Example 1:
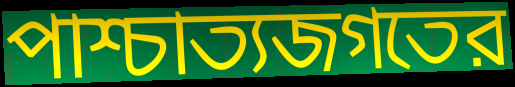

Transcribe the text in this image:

পাশ্চাত্যজগতের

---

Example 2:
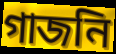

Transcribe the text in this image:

গাজনি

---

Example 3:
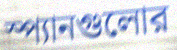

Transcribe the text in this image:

স্প্যানগুলোর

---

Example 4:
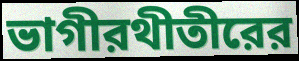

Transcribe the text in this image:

ভাগীরথীতীরের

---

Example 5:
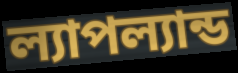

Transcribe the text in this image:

ল্যাপল্যান্ড